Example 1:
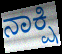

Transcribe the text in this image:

ನಾಕ್ಷಿ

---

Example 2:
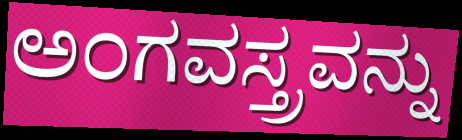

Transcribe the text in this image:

ಅಂಗವಸ್ತ್ರವನ್ನು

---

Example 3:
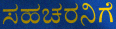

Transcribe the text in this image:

ಸಹಚರನಿಗೆ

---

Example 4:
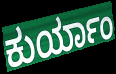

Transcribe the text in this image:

ಕುರ್ಯಾಂ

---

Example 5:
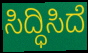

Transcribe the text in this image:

ಸಿದ್ಧಿಸಿದೆ